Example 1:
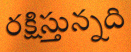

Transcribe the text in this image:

రక్షిస్తున్నది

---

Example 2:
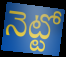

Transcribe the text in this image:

నెట్టో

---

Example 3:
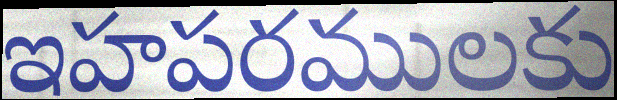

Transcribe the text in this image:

ఇహపరములకు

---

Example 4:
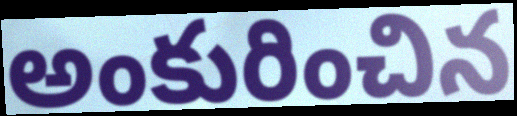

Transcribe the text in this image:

అంకురించిన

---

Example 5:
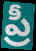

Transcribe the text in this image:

ప్రీ